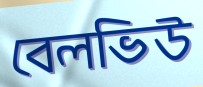
বেলভিউ